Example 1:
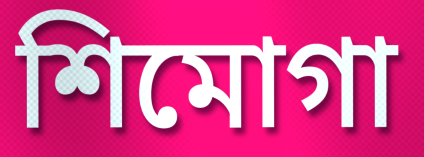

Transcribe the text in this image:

শিমোগা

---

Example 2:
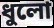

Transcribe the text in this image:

ধুলো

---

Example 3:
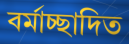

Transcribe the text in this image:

বর্মাচ্ছাদিত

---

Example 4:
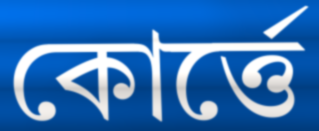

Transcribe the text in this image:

কোর্ত্তে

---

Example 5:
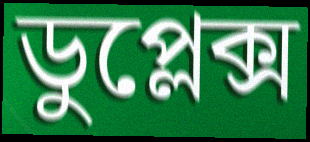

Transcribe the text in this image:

ডুপ্লেক্স